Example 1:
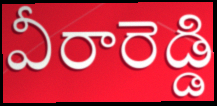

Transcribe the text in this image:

వీరారెడ్డి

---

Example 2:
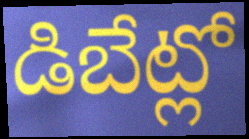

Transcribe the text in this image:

డిబేట్లో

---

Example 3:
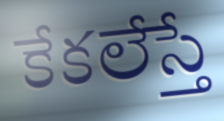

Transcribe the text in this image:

కేకలేస్తే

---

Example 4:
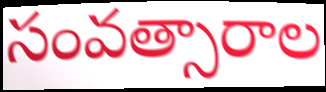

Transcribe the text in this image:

సంవత్సారాల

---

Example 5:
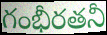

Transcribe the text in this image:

గంభీరతనీ